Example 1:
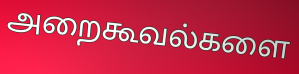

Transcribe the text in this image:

அறைகூவல்களை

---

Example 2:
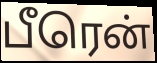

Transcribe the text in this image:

பீரென்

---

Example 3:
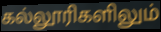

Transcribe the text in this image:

கல்லூரிகளிலும்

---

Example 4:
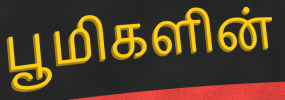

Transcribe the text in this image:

பூமிகளின்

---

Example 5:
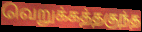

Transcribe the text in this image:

வெறுக்கத்தகுந்த